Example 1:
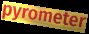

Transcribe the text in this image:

pyrometer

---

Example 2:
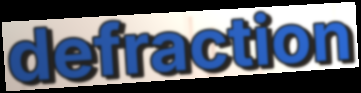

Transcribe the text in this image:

defraction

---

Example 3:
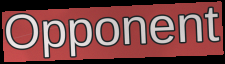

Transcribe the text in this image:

Opponent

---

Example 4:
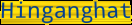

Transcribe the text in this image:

Hinganghat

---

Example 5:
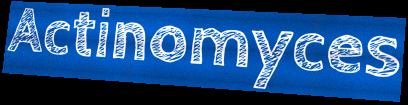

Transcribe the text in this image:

Actinomyces